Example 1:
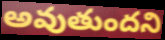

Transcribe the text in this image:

అవుతుందని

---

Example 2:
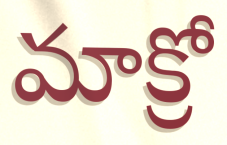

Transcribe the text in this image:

మాక్రో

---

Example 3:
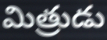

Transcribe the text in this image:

మిత్రుడు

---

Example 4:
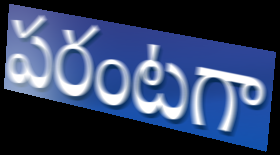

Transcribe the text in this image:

పరంటగా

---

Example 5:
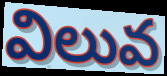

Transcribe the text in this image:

విలువ